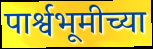
पार्श्वभूमीच्या